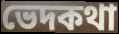
ভেদকথা